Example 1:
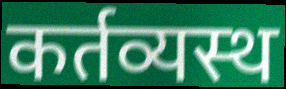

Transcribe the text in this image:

कर्तव्यस्थ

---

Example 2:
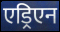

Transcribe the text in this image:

एड्रिएन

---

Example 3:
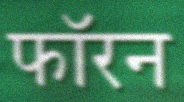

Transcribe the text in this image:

फॉरन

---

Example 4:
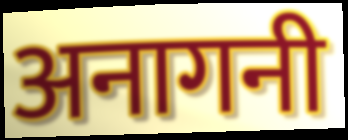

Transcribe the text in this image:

अनागनी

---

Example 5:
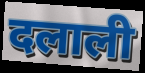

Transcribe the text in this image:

दलाली